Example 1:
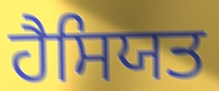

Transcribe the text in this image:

ਹੈਸਿਯਤ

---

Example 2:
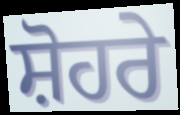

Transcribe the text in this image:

ਸ਼ੋਹਰੇ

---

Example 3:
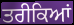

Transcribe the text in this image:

ਤਰੀਕਿਆਂ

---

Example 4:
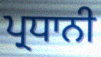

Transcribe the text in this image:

ਪ੍ਰਧਾਨੀ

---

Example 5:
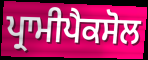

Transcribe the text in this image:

ਪ੍ਰਾਮੀਪੈਕਸੋਲ